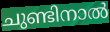
ചുണ്ടിനാൽ